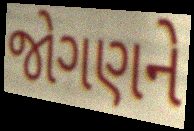
જોગણને